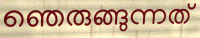
ഞെരുങ്ങുന്നത്